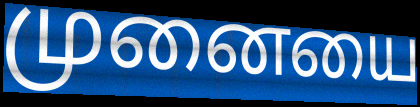
முனையை